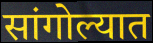
सांगोल्यात